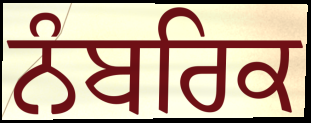
ਨੰਬਰਿਕ